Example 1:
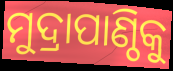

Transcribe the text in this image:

ମୁଦ୍ରାପାଣ୍ଠିକୁ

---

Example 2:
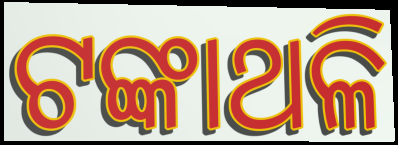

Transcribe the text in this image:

ଟଙ୍କାଥଳି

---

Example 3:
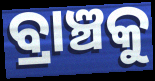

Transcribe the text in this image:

ବ୍ରାଞ୍ଚକୁ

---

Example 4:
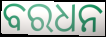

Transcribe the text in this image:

ବରଧନ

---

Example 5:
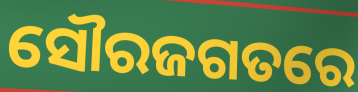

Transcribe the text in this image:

ସୌରଜଗତରେ